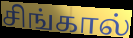
சிங்கால்